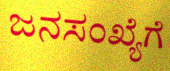
ಜನಸಂಖ್ಯೆಗೆ